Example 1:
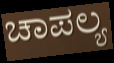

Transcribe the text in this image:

ಚಾಪಲ್ಯ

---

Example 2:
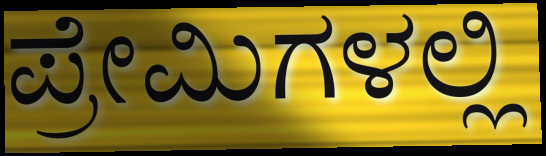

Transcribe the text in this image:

ಪ್ರೇಮಿಗಳಲ್ಲಿ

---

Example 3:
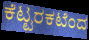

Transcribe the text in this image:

ಕೆಟ್ಟರಕಟೆಂದ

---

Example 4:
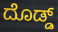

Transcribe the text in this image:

ದೊಡ್ಡ್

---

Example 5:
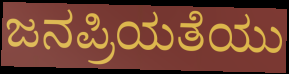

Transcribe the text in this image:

ಜನಪ್ರಿಯತೆಯು